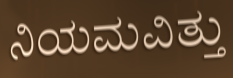
ನಿಯಮವಿತ್ತು